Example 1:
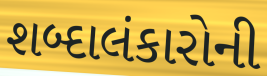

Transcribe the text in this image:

શબ્દાલંકારોની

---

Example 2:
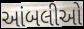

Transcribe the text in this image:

આંબલીઓ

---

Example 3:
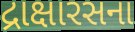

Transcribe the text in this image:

દ્રાક્ષારસના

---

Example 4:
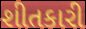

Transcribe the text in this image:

શીતકારી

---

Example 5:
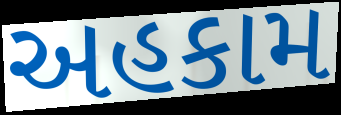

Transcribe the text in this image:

અહકામ